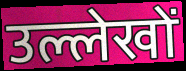
उल्लेखों